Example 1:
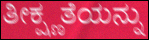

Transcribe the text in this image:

ತೀಕ್ಷ್ಣತೆಯನ್ನು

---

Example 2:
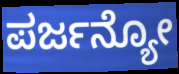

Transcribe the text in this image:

ಪರ್ಜನ್ಯೋ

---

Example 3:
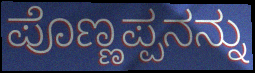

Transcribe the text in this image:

ಪೊಣ್ಣಪ್ಪನನ್ನು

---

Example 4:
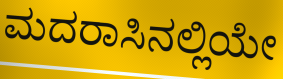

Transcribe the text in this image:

ಮದರಾಸಿನಲ್ಲಿಯೇ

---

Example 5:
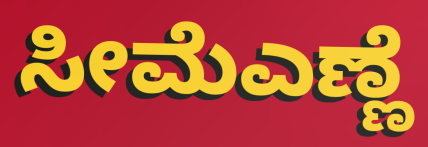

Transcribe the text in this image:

ಸೀಮೆಎಣ್ಣೆ